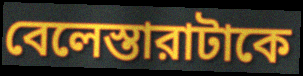
বেলেস্তারাটাকে